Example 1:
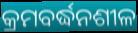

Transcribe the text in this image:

କ୍ରମବର୍ଦ୍ଧନଶୀଳ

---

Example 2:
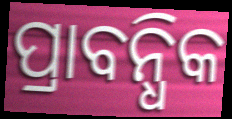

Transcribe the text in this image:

ପ୍ରାବନ୍ଧିକ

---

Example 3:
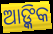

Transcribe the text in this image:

ଆଙ୍କିକ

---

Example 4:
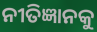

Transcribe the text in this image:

ନୀତିଜ୍ଞାନକୁ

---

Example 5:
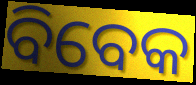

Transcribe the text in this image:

ବିବେକ